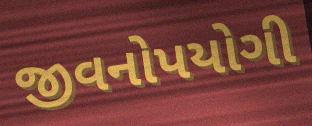
જીવનોપયોગી